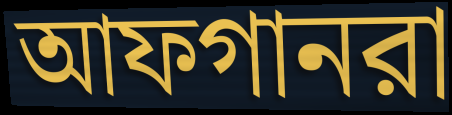
আফগানরা